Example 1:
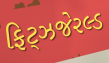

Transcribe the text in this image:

ફિટ્ઝજેરલ્ડ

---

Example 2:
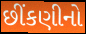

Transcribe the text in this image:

છીંકણીનો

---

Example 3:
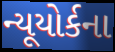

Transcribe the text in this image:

ન્યૂયોર્કના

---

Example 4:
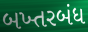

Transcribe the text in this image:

બખ્તરબંધ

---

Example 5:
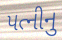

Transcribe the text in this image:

પત્નીનુ